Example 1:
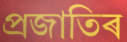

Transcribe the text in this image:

প্ৰজাতিৰ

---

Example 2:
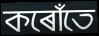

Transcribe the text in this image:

কৰোঁতে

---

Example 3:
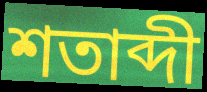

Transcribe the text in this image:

শতাব্দী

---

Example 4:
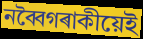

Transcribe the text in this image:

নব্বৈগৰাকীয়েই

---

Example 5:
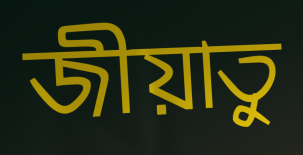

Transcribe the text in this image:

জীয়াতু